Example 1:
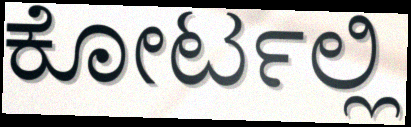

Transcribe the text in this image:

ಕೋರ್ಟಲ್ಲಿ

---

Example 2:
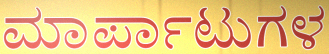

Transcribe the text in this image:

ಮಾರ್ಪಾಟುಗಳ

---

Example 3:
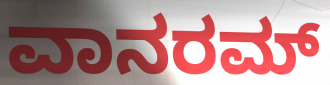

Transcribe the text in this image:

ವಾನರಮ್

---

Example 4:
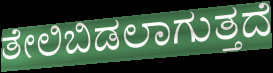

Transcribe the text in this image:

ತೇಲಿಬಿಡಲಾಗುತ್ತದೆ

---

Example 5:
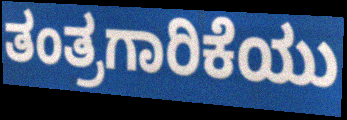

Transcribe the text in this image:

ತಂತ್ರಗಾರಿಕೆಯು